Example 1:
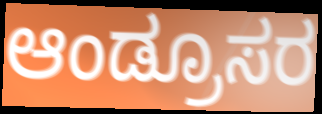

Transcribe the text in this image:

ಆಂಡ್ರೂಸರ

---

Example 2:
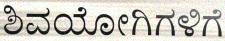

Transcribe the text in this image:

ಶಿವಯೋಗಿಗಳಿಗೆ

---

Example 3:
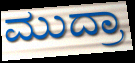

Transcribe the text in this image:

ಮುದ್ರಾ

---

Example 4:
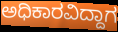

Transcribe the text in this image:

ಅಧಿಕಾರವಿದ್ದಾಗ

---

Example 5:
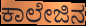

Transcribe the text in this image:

ಕಾಲೇಜಿನ